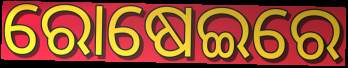
ରୋଷେଇରେ